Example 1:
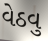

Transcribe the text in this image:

વેઠવુ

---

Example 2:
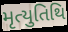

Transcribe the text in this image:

મૃત્યુતિથિ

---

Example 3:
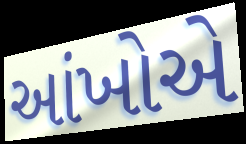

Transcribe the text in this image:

આંખોએ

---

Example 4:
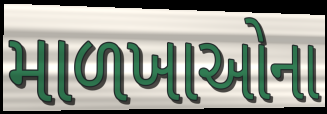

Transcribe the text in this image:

માળખાઓના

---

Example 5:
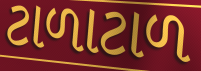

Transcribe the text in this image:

ટાળાટાળ